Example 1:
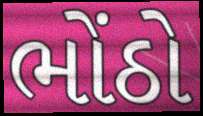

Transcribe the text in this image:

ભોંઠો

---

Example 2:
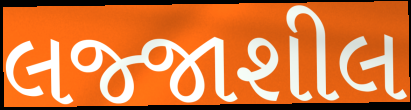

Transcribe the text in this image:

લજ્જાશીલ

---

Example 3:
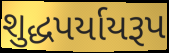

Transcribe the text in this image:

શુદ્ધપર્યાયરૂપ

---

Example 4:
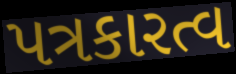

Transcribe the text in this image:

પત્રકારત્વ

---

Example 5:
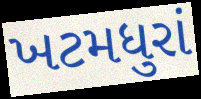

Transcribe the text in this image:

ખટમધુરાં